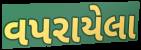
વપરાયેલા